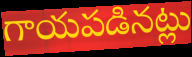
గాయపడినట్లు